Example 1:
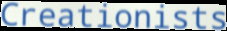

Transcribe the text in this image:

Creationists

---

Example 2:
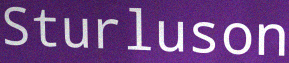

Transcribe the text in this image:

Sturluson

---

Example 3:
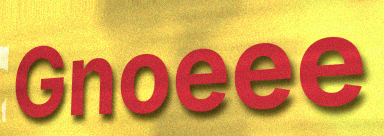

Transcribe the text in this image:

Gnoeee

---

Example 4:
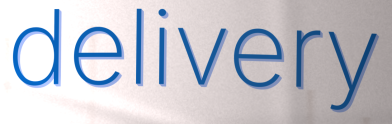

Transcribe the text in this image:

delivery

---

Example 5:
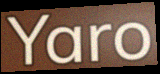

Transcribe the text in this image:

Yaro